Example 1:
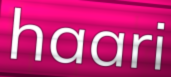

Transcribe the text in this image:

haari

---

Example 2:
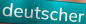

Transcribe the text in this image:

deutscher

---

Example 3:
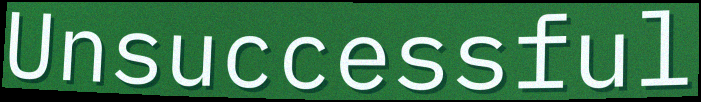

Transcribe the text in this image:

Unsuccessful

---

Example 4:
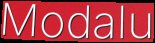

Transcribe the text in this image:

Modalu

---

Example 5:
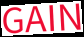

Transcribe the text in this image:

GAIN